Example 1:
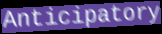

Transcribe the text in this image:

Anticipatory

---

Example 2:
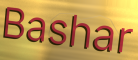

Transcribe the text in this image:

Bashar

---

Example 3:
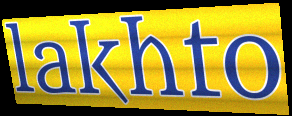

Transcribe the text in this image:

lakhto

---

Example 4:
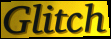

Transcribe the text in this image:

Glitch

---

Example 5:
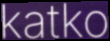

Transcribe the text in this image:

katko